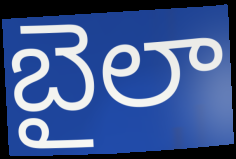
బైలా